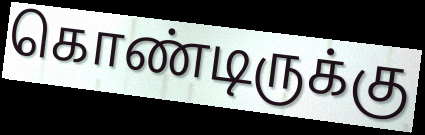
கொண்டிருக்கு